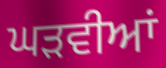
ਘੜਵੀਆਂ